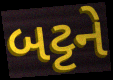
બટ્ટને